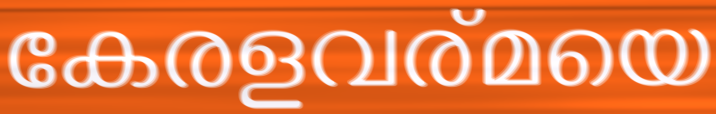
കേരളവര്മയെ